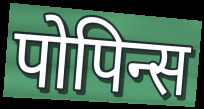
पोपिन्स